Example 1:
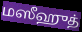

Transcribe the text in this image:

மஸீஹுத்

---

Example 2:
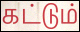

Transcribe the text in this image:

கட்டும்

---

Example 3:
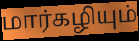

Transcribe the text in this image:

மார்கழியும்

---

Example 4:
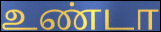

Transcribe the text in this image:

உண்டா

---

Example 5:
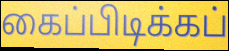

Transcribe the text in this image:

கைப்பிடிக்கப்